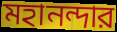
মহানন্দার